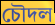
চৌদল